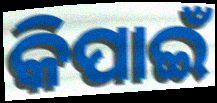
କିପାଇଁ